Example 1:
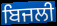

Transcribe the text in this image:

ਬਿਜਲੀ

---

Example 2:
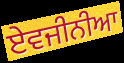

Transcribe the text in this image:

ਏਵਜੀਨੀਆ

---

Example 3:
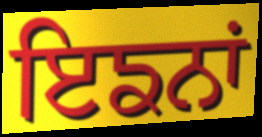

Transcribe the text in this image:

ਇਙਨਾਂ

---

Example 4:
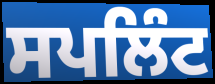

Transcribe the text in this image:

ਸਪਲਿੰਟ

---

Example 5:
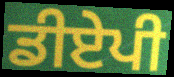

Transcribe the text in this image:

ਡੀਏਪੀ